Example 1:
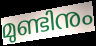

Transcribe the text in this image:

മുണ്ടിനും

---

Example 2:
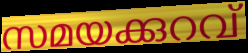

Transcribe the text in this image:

സമയക്കുറവ്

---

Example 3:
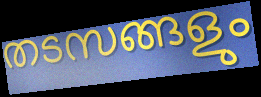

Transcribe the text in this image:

തടസങ്ങളും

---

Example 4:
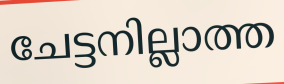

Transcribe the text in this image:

ചേട്ടനില്ലാത്ത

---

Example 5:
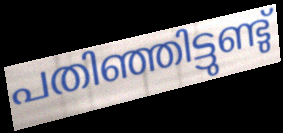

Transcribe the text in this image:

പതിഞ്ഞിട്ടുണ്ടു്